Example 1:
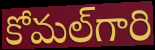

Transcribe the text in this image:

కోమల్‌గారి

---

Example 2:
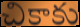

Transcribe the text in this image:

చికాకు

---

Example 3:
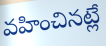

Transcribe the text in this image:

వహించినట్లే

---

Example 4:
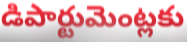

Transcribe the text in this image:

డిపార్టుమెంట్లకు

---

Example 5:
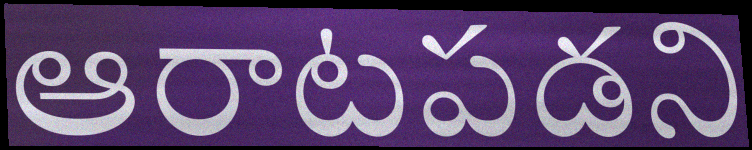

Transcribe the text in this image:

ఆరాటపడని